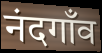
नंदगाँव